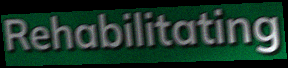
Rehabilitating